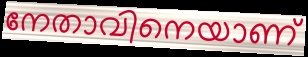
നേതാവിനെയാണ്